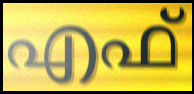
എഫ്